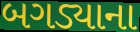
બગડ્યાના